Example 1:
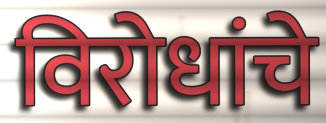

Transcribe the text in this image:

विरोधांचे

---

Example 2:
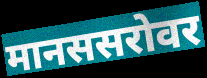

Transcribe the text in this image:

मानससरोवर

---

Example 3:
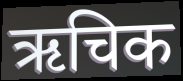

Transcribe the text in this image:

ऋचिक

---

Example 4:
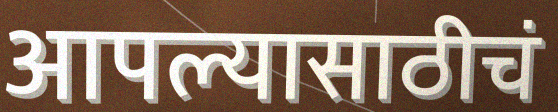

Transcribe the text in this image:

आपल्यासाठीचं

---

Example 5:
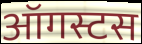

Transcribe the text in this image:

ऑगस्टस